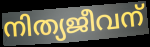
നിത്യജീവന്